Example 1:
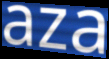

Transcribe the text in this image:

aza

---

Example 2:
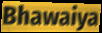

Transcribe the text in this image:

Bhawaiya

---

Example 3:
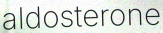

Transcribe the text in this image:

aldosterone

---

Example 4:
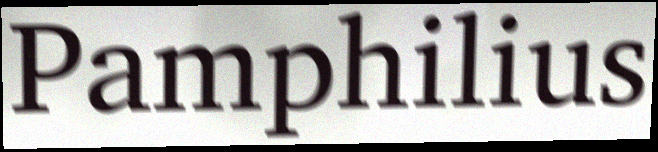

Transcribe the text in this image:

Pamphilius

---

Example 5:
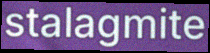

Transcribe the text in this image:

stalagmite